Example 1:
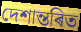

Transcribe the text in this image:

দেশান্তৰিত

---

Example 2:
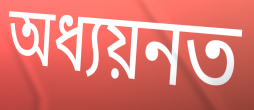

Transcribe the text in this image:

অধ্যয়নত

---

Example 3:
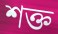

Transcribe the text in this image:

শক্ত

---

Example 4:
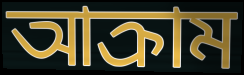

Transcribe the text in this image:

আক্ৰাম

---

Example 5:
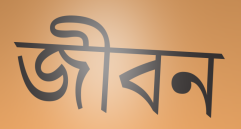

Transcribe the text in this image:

জীবন